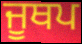
ਜੂਥਪ